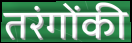
तरंगोंकी